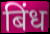
बिंध